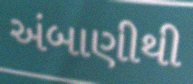
અંબાણીથી